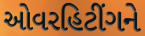
ઓવરહિટીંગને